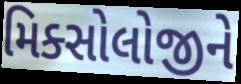
મિક્સોલોજીને